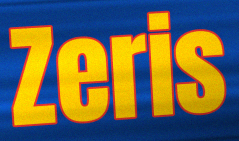
Zeris